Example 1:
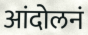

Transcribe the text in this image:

आंदोलनं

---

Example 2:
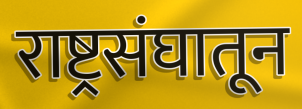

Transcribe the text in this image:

राष्ट्रसंघातून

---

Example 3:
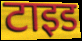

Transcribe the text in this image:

टाइड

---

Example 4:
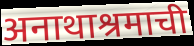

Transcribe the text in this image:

अनाथाश्रमाची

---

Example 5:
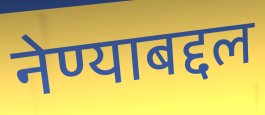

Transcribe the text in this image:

नेण्याबद्दल